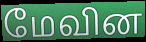
மேவின